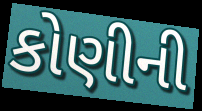
કોણીની